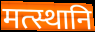
मत्स्थानि